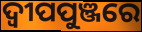
ଦ୍ୱୀପପୁଞ୍ଜରେ